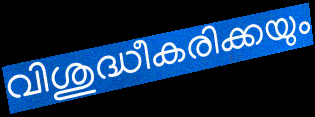
വിശുദ്ധീകരിക്കയും